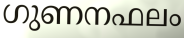
ഗുണനഫലം